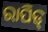
ରାପିଡ୍